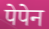
पेपेन